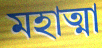
মহাত্মা